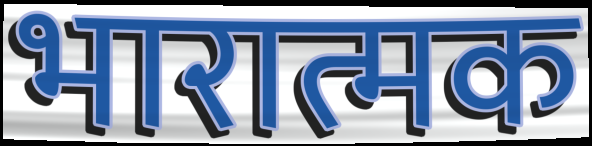
भारात्मक